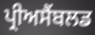
ਪ੍ਰੀਅਸੈਂਬਲਡ